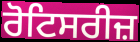
ਰੋਟਿਸਰੀਜ਼